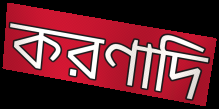
করণাদি